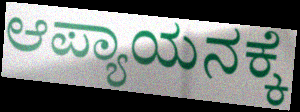
ಆಪ್ಯಾಯನಕ್ಕೆ